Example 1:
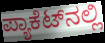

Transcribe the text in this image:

ಪ್ಯಾಕೆಟ್‍ನಲ್ಲಿ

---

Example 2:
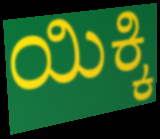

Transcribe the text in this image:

ಯಿಕ್ಕಿ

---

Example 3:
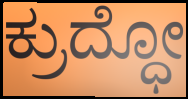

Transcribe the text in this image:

ಕ್ರುದ್ಧೋ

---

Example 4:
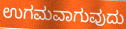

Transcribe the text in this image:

ಉಗಮವಾಗುವುದು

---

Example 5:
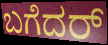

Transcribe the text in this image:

ಬಗೆದರ್